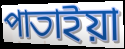
পাতাইয়া